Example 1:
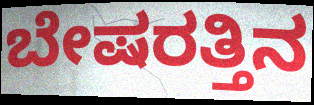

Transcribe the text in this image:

ಬೇಷರತ್ತಿನ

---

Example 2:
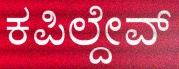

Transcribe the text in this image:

ಕಪಿಲ್ದೇವ್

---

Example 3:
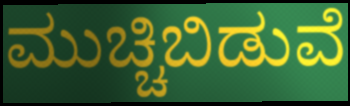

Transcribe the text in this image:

ಮುಚ್ಚಿಬಿಡುವೆ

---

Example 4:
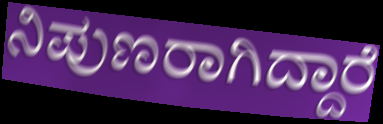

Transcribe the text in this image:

ನಿಪುಣರಾಗಿದ್ದಾರೆ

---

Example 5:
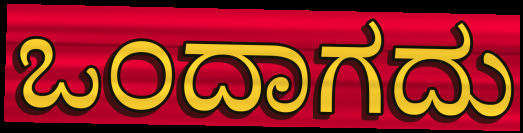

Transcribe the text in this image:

ಒಂದಾಗದು